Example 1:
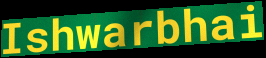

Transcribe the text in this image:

Ishwarbhai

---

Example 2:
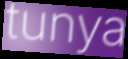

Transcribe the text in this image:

tunya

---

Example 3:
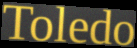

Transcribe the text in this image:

Toledo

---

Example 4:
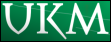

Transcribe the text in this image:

UKM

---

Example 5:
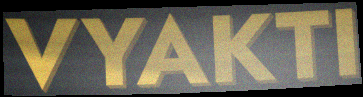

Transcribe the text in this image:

VYAKTI